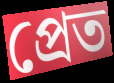
প্ৰেত